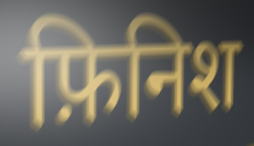
फ़िनिश